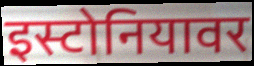
इस्टोनियावर